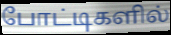
போட்டிகளில்